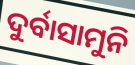
ଦୁର୍ବାସାମୁନି